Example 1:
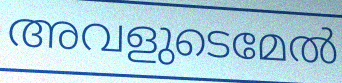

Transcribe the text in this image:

അവളുടെമേൽ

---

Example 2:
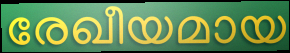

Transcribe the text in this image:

രേഖീയമായ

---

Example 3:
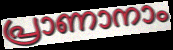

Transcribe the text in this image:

പ്രാണാനാം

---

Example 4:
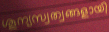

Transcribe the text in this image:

ശൂന്യസ്വത്വങ്ങളായി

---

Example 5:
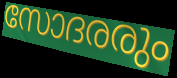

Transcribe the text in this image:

സോദരരും